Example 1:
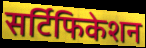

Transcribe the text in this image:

सर्टिफिकेशन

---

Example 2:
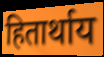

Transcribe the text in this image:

हितार्थाय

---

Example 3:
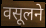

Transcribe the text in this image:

वसूलने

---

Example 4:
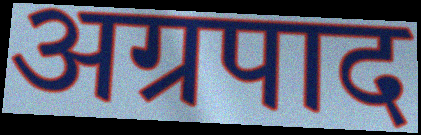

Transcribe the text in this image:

अग्रपाद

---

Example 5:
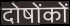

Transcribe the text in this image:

दोषोंकों